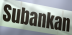
Subankan